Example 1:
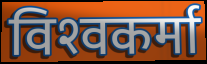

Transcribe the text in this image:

विश्वकर्मा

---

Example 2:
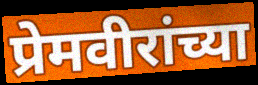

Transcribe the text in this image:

प्रेमवीरांच्या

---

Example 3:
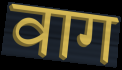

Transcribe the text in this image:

वाग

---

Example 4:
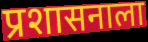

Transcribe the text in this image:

प्रशासनाला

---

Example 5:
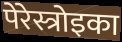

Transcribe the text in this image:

पेरेस्त्रोइका